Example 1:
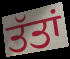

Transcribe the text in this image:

ਤੱਤਾਂ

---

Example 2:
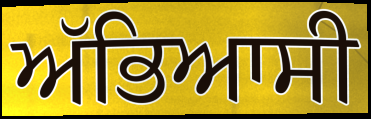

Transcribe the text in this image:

ਅੱਭਿਆਸੀ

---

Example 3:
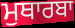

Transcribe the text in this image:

ਮੁਥਾਰਬਾ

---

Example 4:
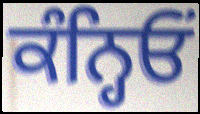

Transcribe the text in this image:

ਕੰਨ੍ਹਿਓਂ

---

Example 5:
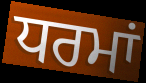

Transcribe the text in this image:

ਧਰਮਾਂ